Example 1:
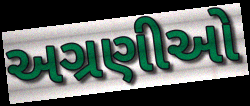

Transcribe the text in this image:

અગ્રણીઓ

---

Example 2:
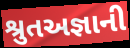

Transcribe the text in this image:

શ્રુતઅજ્ઞાની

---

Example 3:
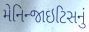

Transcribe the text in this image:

મેનિન્જાઇટિસનું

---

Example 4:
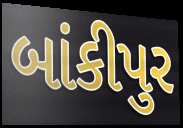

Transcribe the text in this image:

બાંકીપુર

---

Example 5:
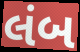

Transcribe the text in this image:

લંબ